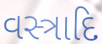
વસ્ત્રાદિ